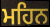
ਮਹਿਨ